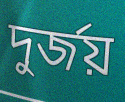
দুর্জয়